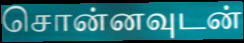
சொன்னவுடன்